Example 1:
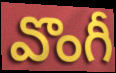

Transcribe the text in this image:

వొంగీ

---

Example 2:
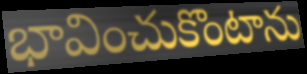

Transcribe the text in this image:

భావించుకొంటాను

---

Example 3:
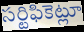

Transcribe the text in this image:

సర్టిఫికెట్లూ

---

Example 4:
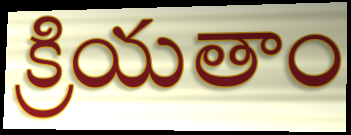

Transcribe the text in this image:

క్రియతాం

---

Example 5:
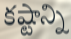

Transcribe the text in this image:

కష్టాన్ని